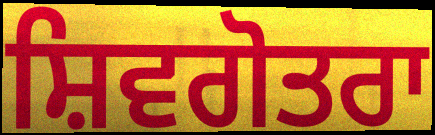
ਸ਼ਿਵਗੋਤਰਾ